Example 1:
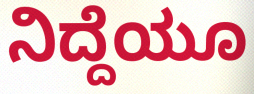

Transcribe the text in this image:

ನಿದ್ದೆಯೂ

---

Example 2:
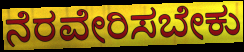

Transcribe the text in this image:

ನೆರವೇರಿಸಬೇಕು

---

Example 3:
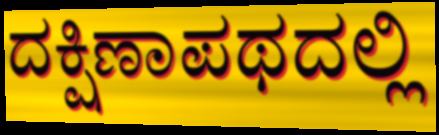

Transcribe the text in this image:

ದಕ್ಷಿಣಾಪಥದಲ್ಲಿ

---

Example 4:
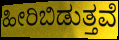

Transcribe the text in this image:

ಹೀರಿಬಿಡುತ್ತವೆ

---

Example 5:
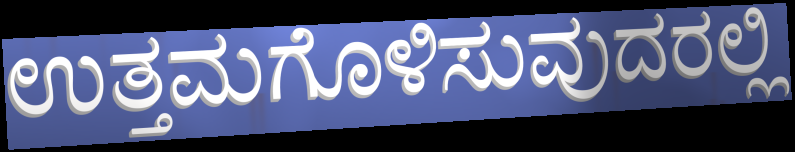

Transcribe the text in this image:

ಉತ್ತಮಗೊಳಿಸುವುದರಲ್ಲಿ